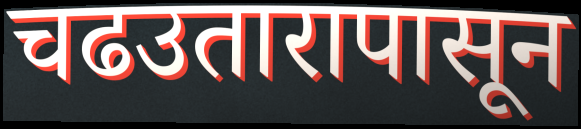
चढउतारापासून